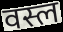
वस्ल